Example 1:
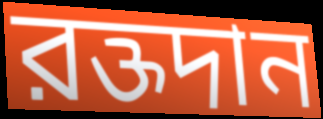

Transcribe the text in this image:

রক্তদান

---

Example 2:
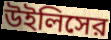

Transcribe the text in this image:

উইলিসের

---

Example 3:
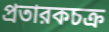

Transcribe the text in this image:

প্রতারকচক্র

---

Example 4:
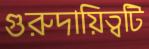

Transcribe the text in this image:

গুরুদায়িত্বটি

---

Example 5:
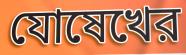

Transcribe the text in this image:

যোষেখের